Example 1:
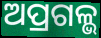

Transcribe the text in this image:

ଅପ୍ରଗଳ୍ଭ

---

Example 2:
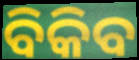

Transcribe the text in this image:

ବିକିବ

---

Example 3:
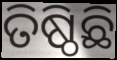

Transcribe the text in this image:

ତିଷ୍ଠିଛି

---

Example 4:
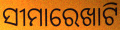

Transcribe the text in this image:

ସୀମାରେଖାଟି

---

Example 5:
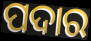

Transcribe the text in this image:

ପଦାର